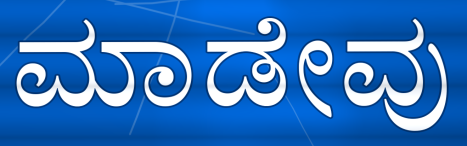
ಮಾಡೇವು